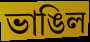
ভাঙিল